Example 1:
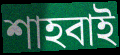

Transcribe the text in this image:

শাহবাই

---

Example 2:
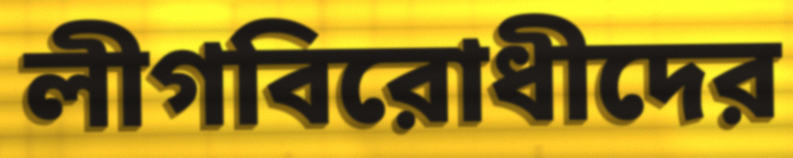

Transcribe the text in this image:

লীগবিরোধীদের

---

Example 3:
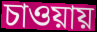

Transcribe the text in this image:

চাওয়ায়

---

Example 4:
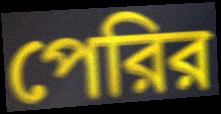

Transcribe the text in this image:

পেরির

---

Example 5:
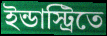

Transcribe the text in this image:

ইন্ডাস্ট্রিতে